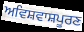
ਅਵਿਸ਼ਵਾਸ਼ਪੂਰਣ